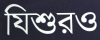
যিশুরও